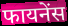
फायनेंस